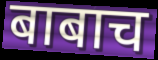
बाबाच